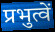
प्रभुत्वें